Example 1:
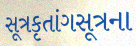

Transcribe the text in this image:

સૂત્રકૃતાંગસૂત્રના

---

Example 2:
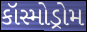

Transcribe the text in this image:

કૉસ્મોડ્રોમ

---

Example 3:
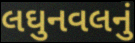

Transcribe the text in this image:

લઘુનવલનું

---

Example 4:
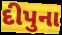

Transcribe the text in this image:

દીપુના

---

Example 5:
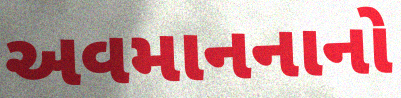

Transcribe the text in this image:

અવમાનનાનો